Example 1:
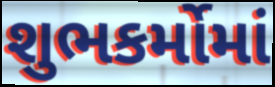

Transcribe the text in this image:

શુભકર્મોમાં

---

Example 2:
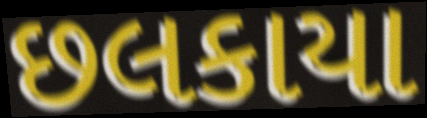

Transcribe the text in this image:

છલકાયા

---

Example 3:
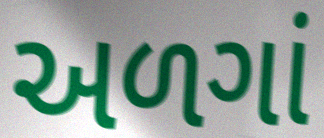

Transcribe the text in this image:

અળગાં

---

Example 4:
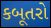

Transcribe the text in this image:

કબૂતરો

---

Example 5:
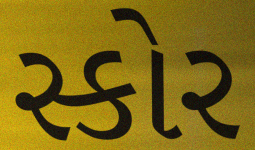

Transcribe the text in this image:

સ્કોર